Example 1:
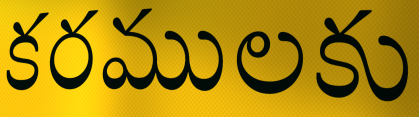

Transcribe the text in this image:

కరములకు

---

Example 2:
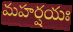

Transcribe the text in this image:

మహర్షయః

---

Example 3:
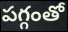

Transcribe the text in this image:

పగ్గంతో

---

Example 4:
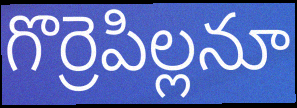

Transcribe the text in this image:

గొర్రెపిల్లనూ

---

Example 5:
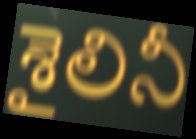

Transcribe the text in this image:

శైలినీ